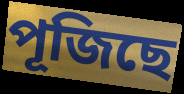
পূজিছে